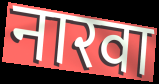
नारवा